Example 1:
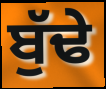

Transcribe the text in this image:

ਬੁੱਢੇ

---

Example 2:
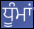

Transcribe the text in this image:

ਧੂੰਮਾਂ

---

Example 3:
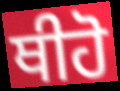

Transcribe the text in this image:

ਥੀਹੋ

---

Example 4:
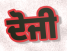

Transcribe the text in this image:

ਦੋਜੀ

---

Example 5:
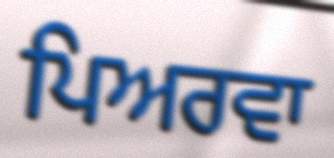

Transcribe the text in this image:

ਪਿਅਰਵਾ